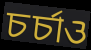
চৰ্চাও